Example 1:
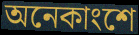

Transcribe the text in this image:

অনেকাংশে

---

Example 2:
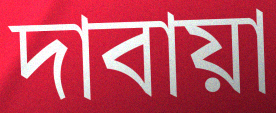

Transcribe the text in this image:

দাবায়া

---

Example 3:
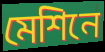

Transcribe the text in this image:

মেশিনে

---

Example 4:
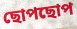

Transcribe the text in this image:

ছোপছোপ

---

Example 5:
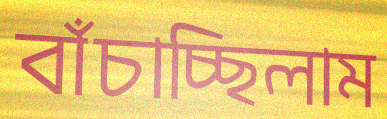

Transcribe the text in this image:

বাঁচাচ্ছিলাম